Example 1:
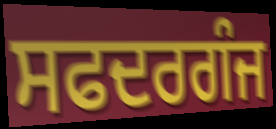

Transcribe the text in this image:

ਸਫਦਰਗੰਜ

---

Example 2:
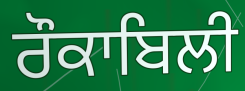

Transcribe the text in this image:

ਰੌਕਾਬਿਲੀ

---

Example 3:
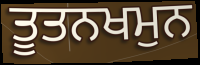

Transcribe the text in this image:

ਤੂਤਨਖਮੁਨ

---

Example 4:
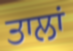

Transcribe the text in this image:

ਤਾਲਾਂ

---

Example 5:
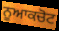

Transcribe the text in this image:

ਨੂਆਕਚੋਟ